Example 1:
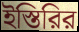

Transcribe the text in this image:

ইস্তিরির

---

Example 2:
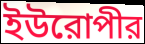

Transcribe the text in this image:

ইউরোপীর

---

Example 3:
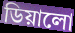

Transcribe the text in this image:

ডিয়ালো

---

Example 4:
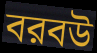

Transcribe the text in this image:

বরবউ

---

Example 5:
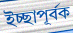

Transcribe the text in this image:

ইচ্ছাপূর্বক